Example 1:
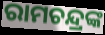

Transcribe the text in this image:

ରାମଚନ୍ଦ୍ରଙ୍କ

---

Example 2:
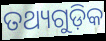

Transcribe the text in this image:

ତଥ୍ୟଗୁଡ଼ିକ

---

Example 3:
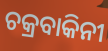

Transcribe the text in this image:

ଚକ୍ରବାକିନୀ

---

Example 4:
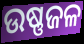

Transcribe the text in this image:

ଉଷ୍ଣଜଳ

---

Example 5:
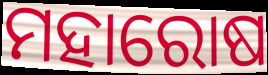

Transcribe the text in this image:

ମହାରୋଷ